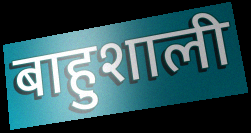
बाहुशाली